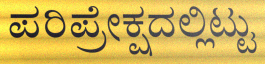
ಪರಿಪ್ರೇಕ್ಷದಲ್ಲಿಟ್ಟು